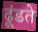
ढूंडते